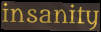
insanity